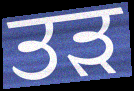
ਤੜ